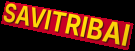
SAVITRIBAI